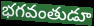
భగవంతుడూ